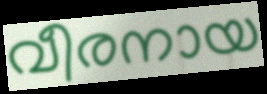
വീരനായ